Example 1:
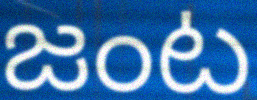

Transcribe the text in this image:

జంట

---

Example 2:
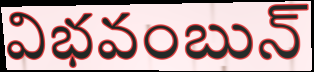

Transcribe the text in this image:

విభవంబున్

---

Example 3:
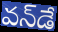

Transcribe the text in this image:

వన్‌డే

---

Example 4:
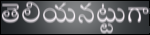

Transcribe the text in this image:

తెలియనట్టుగా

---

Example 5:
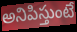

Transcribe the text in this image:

అనిపిస్తుంటే